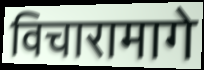
विचारामागे